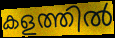
കളത്തിൽ